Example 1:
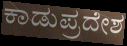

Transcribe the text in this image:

ಕಾಡುಪ್ರದೇಶ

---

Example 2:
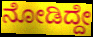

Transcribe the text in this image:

ನೋಡಿದ್ದೇ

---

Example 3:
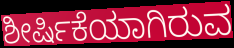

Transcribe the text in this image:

ಶೀರ್ಷಿಕೆಯಾಗಿರುವ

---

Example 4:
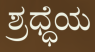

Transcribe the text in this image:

ಶ್ರಧ್ಧೆಯ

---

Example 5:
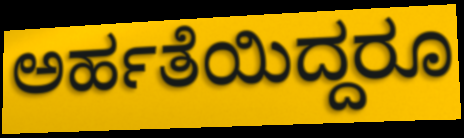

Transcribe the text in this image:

ಅರ್ಹತೆಯಿದ್ದರೂ